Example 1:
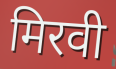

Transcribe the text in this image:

मिरवी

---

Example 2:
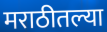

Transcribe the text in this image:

मराठीतल्या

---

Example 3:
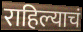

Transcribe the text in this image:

राहिल्याचं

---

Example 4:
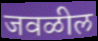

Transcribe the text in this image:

जवळील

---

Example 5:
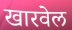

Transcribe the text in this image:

खारवेल